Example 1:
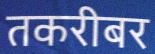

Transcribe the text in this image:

तकरीबर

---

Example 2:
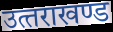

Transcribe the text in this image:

उत्‍तराखण्‍ड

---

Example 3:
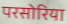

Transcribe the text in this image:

परसोरिया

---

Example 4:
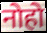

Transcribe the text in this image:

नोहो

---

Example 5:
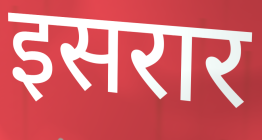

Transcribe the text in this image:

इसरार